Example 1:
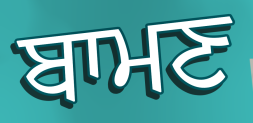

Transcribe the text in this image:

ਬਾਮਣ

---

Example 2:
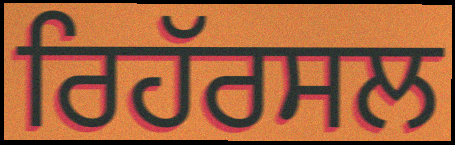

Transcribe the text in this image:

ਰਿਹੱਰਸਲ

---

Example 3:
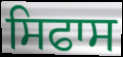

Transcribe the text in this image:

ਸਿਫਾਸ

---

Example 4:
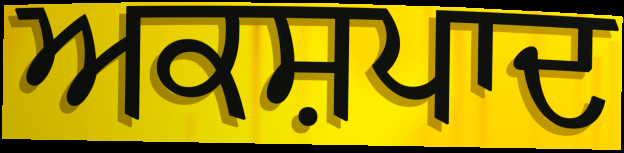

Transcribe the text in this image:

ਅਕਸ਼ਪਾਦ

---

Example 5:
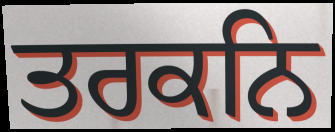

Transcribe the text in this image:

ਤਰਕਨਿ